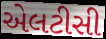
એલટીસી